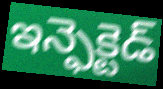
ఇన్ఫెక్టెడ్